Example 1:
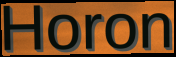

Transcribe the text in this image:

Horon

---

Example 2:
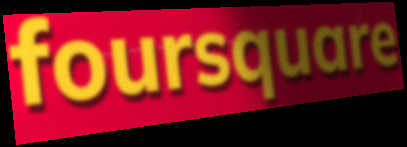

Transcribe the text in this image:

foursquare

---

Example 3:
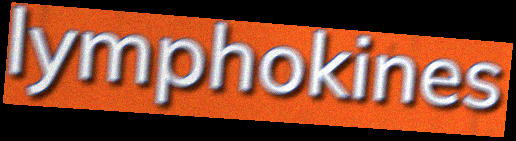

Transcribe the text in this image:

lymphokines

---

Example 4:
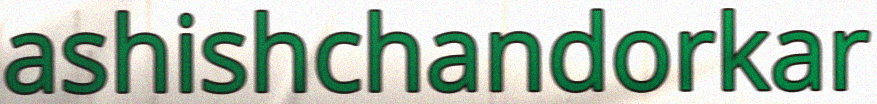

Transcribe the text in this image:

ashishchandorkar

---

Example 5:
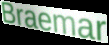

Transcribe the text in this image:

Braemar